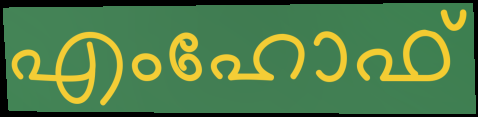
എംഹോഫ്